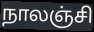
நாலஞ்சி